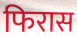
फिरास